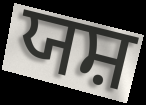
ਯਸ਼